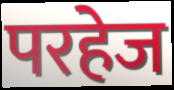
परहेज